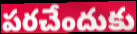
పరచేందుకు